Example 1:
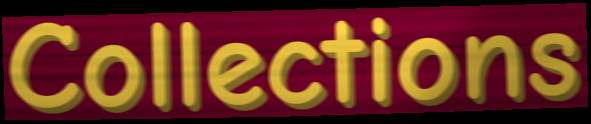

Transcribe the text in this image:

Collections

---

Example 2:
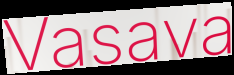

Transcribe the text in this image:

Vasava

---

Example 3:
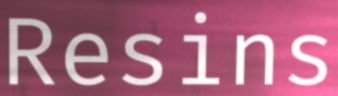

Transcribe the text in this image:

Resins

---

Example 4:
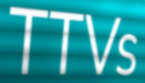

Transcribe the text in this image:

TTVs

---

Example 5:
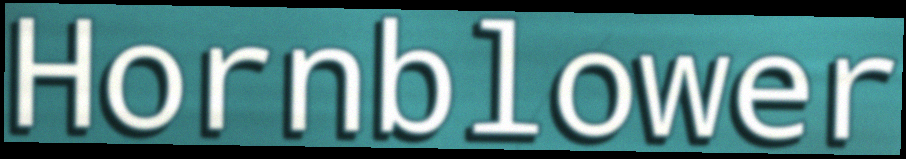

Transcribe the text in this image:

Hornblower